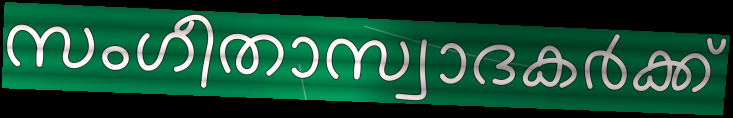
സംഗീതാസ്വാദകർക്ക്